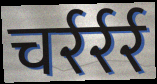
चर्रर्रर्र